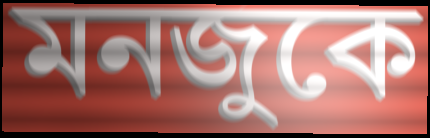
মনজুকে